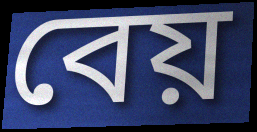
বেয়